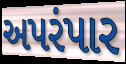
અપરંપાર